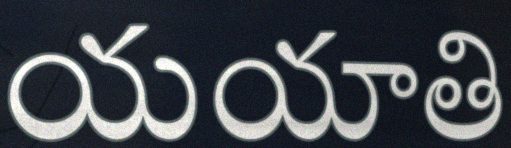
యయాతి